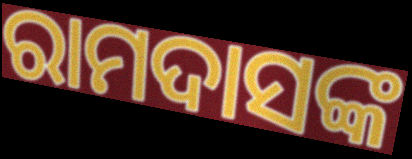
ରାମଦାସଙ୍କ